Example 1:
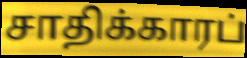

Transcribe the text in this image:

சாதிக்காரப்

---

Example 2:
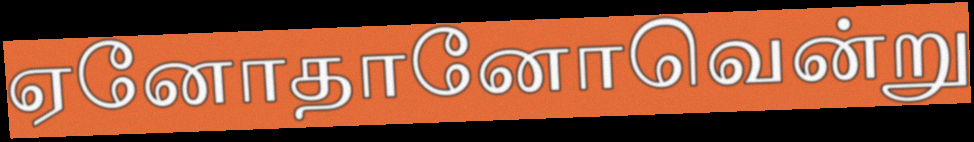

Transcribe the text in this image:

ஏனோதானோவென்று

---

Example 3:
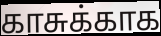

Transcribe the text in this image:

காசுக்காக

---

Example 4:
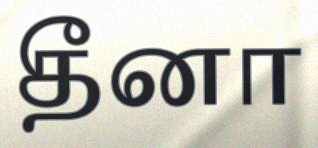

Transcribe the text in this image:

தீனா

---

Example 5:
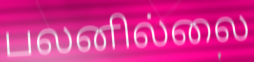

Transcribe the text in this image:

பலனில்லை